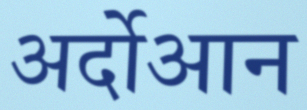
अर्दोआन